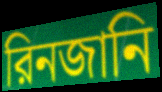
রিনজানি